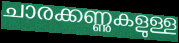
ചാരക്കണ്ണുകളുള്ള